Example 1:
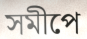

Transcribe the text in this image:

সমীপে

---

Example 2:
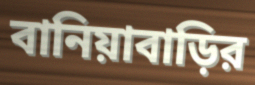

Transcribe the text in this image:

বানিয়াবাড়ির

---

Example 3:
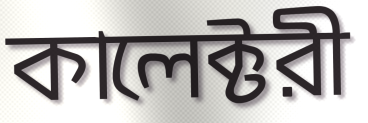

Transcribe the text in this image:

কালেক্টরী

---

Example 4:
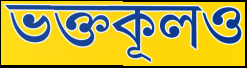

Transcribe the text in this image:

ভক্তকূলও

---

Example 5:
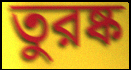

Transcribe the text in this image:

তুরষ্ক